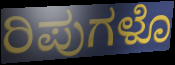
ರಿಪುಗಳೊ